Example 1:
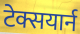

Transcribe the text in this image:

टेक्सयार्न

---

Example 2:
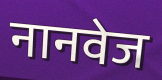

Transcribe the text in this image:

नानवेज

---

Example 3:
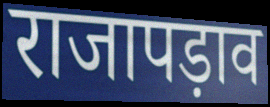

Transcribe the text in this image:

राजापड़ाव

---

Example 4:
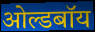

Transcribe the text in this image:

ओल्डबॉय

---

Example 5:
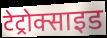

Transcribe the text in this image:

टेट्रोक्साइड